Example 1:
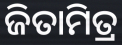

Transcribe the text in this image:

ଜିତାମିତ୍ର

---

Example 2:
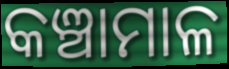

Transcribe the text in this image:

କଞ୍ଚାମାଳ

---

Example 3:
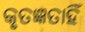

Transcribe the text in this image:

କୃତଜ୍ଞତାହିଁ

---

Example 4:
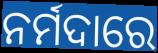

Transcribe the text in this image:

ନର୍ମଦାରେ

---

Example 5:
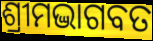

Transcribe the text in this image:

ଶ୍ରୀମଦ୍ଭାଗବତ